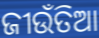
ଜୀଉଁତିଆ